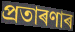
প্ৰতাৰণাৰ